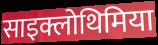
साइक्लोथिमिया